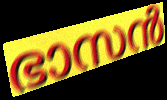
ഭാസൻ